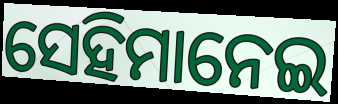
ସେହିମାନେଇ